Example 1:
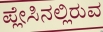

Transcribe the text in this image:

ಪ್ಲೇಸಿನಲ್ಲಿರುವ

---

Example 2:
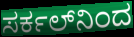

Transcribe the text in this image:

ಸರ್ಕಲ್‌ನಿಂದ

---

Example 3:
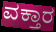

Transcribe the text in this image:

ವಕ್ತಾರ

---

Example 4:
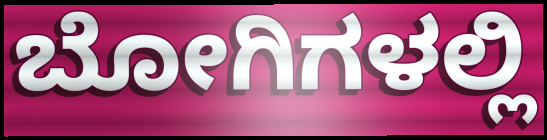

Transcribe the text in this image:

ಬೋಗಿಗಳಲ್ಲಿ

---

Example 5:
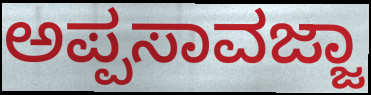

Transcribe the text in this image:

ಅಪ್ಪಸಾವಜ್ಜಾ